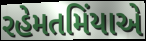
રહેમતમિંયાએ